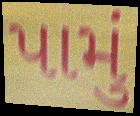
પામું